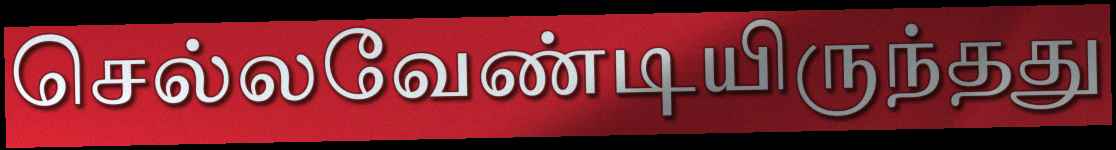
செல்லவேண்டியிருந்தது